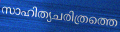
സാഹിത്യചരിത്രത്തെ